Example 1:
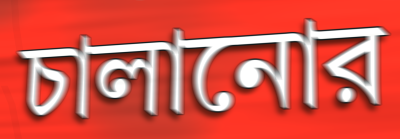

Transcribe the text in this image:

চালানোর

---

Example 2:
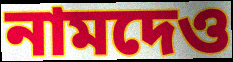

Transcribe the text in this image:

নামদেও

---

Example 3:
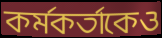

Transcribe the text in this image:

কর্মকর্তাকেও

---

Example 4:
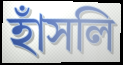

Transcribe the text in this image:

হাঁসলি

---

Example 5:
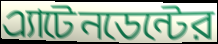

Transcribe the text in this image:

এ্যাটেনডেন্টের